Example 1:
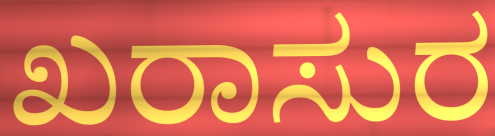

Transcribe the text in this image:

ಖರಾಸುರ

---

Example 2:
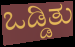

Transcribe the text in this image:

ಒಡ್ಡಿತು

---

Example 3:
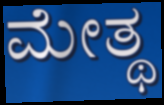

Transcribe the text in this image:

ಮೇತ್ಥ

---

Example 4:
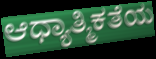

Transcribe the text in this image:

ಆಧ್ಯಾತ್ಮಿಕತೆಯ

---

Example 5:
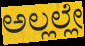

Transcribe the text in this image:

ಅಲ್ಲಲ್ಲೇ